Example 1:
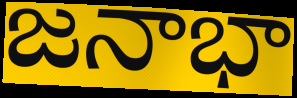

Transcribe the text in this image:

జనాభా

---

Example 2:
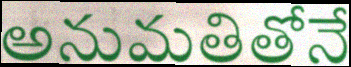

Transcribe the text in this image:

అనుమతితోనే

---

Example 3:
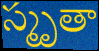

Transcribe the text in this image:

స్మృతా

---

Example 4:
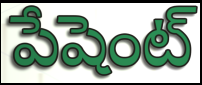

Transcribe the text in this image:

పేషెంట్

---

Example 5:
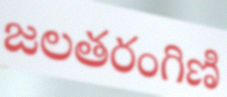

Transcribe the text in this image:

జలతరంగిణి